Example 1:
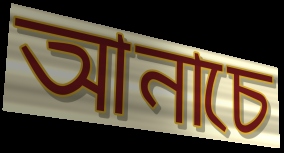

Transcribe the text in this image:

আনাচে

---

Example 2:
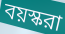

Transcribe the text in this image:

বয়স্করা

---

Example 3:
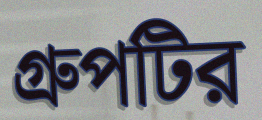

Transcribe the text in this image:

গ্রুপটির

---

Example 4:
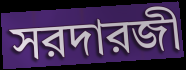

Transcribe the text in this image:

সরদারজী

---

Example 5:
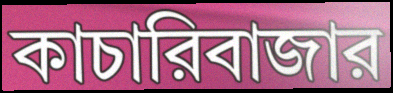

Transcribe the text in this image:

কাচারিবাজার